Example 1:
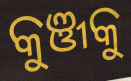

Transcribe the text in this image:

କୁଞ୍ଜକୁ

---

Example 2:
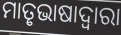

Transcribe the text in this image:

ମାତୃଭାଷାଦ୍ୱାରା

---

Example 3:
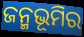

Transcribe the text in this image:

ଜନ୍ମଭୂମିର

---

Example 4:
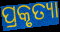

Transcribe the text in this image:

ପ୍ରକୃତ୍ୟା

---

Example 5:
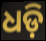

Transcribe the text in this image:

ଧଡ଼ି